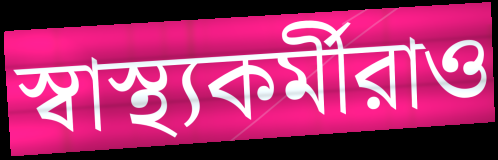
স্বাস্থ্যকর্মীরাও